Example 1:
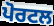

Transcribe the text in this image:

ਪੋਰਟਲ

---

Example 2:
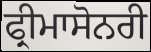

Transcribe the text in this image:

ਫ੍ਰੀਮਾਸੋਨਰੀ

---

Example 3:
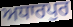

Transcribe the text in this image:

ਅਧਾਰਪੁਰ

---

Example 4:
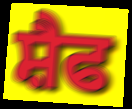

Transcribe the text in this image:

ਸ਼ੈਫ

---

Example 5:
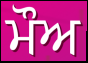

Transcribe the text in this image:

ਮੌਅ